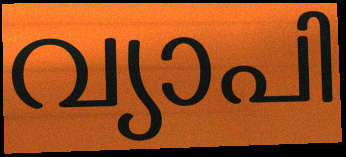
വ്യാപി